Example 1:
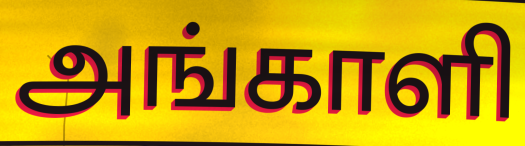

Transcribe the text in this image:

அங்காளி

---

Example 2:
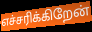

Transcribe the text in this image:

எச்சரிக்கிறேன்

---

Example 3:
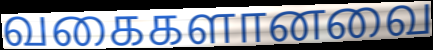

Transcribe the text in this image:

வகைகளானவை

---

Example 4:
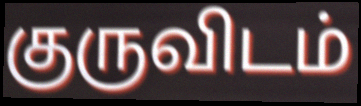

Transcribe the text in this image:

குருவிடம்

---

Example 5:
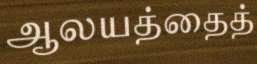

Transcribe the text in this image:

ஆலயத்தைத்